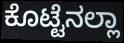
ಕೊಟ್ಟೆನಲ್ಲಾ